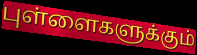
புள்ளைகளுக்கும்